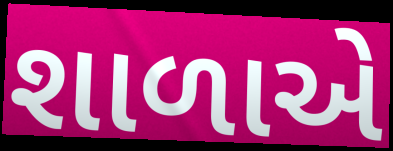
શાળાએે